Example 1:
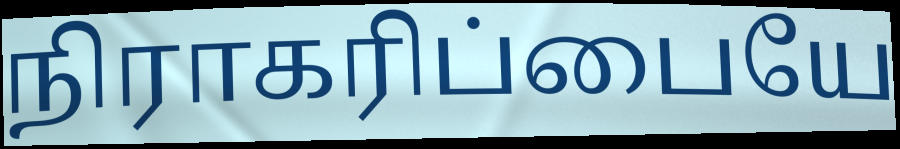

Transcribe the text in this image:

நிராகரிப்பையே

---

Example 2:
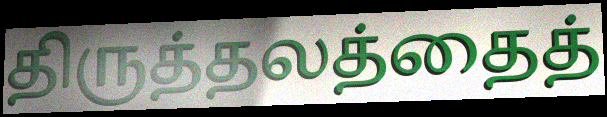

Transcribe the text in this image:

திருத்தலத்தைத்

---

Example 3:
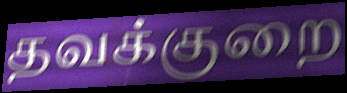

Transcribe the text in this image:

தவக்குறை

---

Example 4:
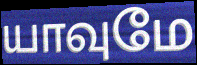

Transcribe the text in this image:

யாவுமே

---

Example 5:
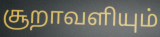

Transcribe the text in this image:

சூறாவளியும்